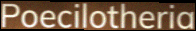
Poecilotheria